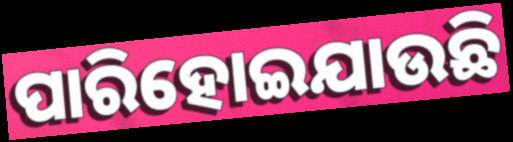
ପାରିହୋଇଯାଉଛି